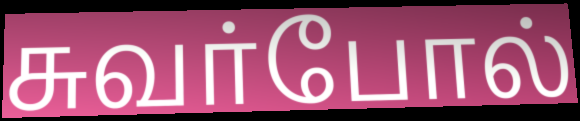
சுவர்போல்